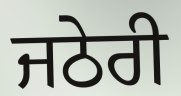
ਜਠੇਰੀ